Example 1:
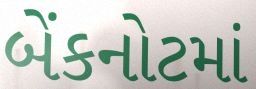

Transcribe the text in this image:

બેંકનોટમાં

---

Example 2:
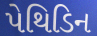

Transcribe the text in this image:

પેથિડિન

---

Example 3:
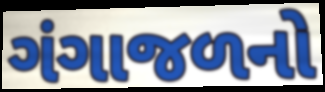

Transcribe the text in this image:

ગંગાજળનો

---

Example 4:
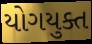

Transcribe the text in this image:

યોગયુક્ત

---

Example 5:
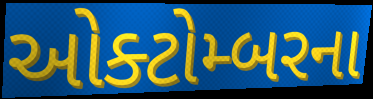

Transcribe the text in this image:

ઓક્ટોમ્બરના